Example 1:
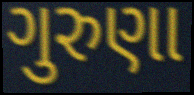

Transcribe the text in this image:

ગુરુણા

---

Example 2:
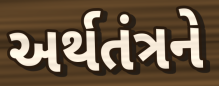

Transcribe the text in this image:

અર્થતંત્રને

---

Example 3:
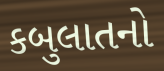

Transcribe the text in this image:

કબુલાતનો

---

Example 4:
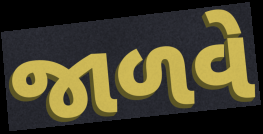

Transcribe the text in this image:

જાળવે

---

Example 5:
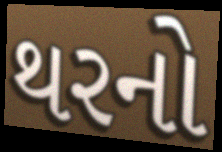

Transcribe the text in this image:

થરનો